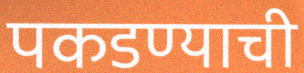
पकडण्याची